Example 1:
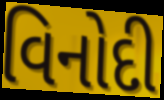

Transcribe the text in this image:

વિનોદી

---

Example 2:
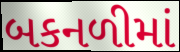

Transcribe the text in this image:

બકનળીમાં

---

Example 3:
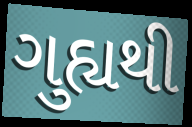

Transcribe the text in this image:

ગુહ્યથી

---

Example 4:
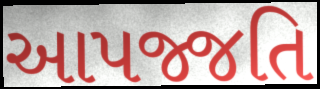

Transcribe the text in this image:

આપજ્જતિ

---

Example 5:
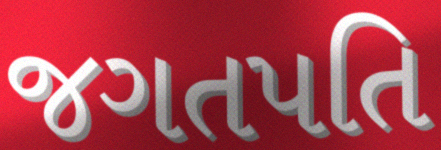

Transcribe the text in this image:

જગતપતિ